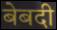
बेबदी